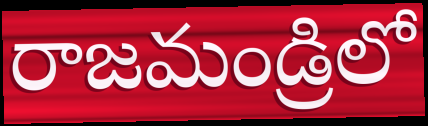
రాజమండ్రిలో